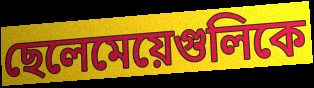
ছেলেমেয়েগুলিকে